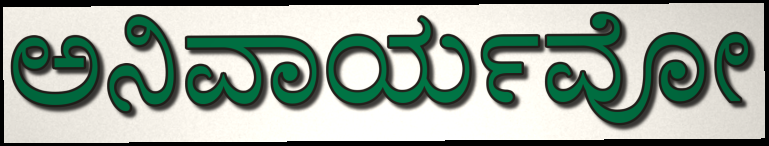
ಅನಿವಾರ್ಯವೋ